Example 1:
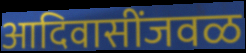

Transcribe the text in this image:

आदिवासींजवळ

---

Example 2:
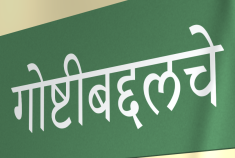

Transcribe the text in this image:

गोष्टीबद्दलचे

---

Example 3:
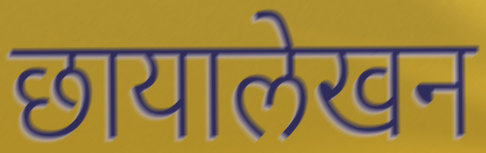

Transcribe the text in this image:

छायालेखन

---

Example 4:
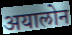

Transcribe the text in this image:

अयालोन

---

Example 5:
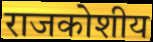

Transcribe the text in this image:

राजकोशीय